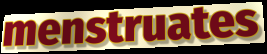
menstruates